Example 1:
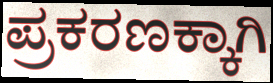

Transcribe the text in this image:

ಪ್ರಕರಣಕ್ಕಾಗಿ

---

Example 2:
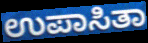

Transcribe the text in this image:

ಉಪಾಸಿತಾ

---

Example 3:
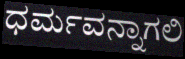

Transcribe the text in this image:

ಧರ್ಮವನ್ನಾಗಲಿ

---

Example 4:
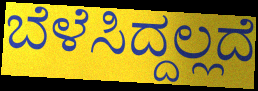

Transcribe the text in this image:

ಬೆಳೆಸಿದ್ದಲ್ಲದೆ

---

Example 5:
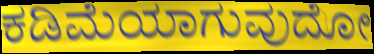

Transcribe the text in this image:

ಕಡಿಮೆಯಾಗುವುದೋ